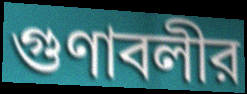
গুণাবলীর